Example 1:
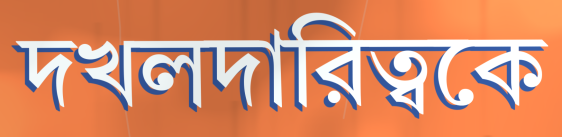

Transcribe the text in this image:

দখলদারিত্বকে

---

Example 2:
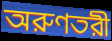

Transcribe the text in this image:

অরুণতরী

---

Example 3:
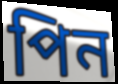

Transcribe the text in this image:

পিন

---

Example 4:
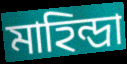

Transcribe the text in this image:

মাহিন্দ্রা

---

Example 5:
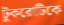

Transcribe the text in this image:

টুকরোটিকে